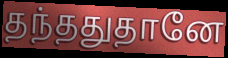
தந்ததுதானே